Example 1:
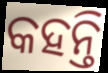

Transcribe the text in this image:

କହନ୍ତି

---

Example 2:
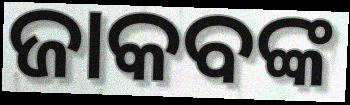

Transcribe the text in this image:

ଜାକବଙ୍କ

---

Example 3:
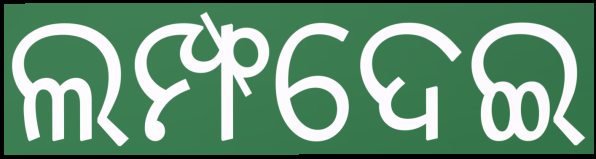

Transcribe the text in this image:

ଲମ୍ଫଦେଇ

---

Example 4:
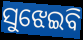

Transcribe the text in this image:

ସୁଝେଇବି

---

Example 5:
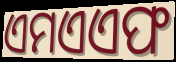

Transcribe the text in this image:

ଏମଏଏଫ